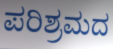
ಪರಿಶ್ರಮದ